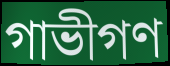
গাভীগণ